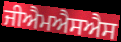
ਜੀਐਮਐਸਐਸ